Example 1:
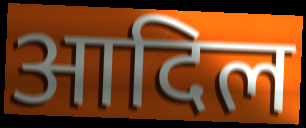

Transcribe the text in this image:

आदिल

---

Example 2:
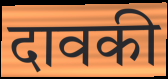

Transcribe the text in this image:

दावकी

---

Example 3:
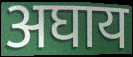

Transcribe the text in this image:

अघाय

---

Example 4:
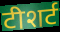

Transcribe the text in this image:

टीशर्ट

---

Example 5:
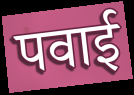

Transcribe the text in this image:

पवाई